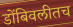
डोंबिवलीतच